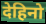
देहिनो